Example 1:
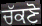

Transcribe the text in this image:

ਚੱਕਣੋ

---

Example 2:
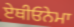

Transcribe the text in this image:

ਏਥੀਓਨੇਮਾ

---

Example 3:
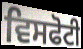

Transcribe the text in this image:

ਵਿਸਫੋਟੀ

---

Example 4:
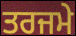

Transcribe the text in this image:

ਤਰਜਮੇ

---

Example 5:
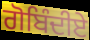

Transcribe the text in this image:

ਗੋਬਿੰਦੀਏ